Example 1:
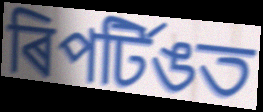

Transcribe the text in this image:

ৰিপৰ্টিঙত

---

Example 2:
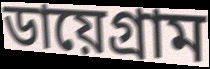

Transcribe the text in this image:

ডায়েগ্ৰাম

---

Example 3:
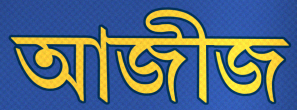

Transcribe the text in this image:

আজীজ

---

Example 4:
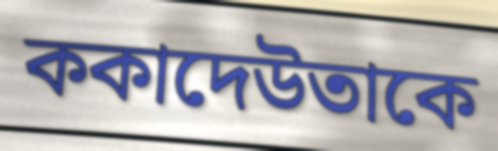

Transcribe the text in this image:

ককাদেউতাকে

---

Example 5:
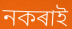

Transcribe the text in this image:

নকৰাই